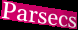
Parsecs